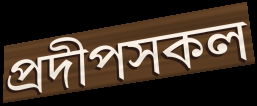
প্রদীপসকল